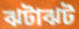
ঝটাঝট